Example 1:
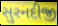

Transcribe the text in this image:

સુરનદીજી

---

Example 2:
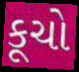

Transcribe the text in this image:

કૂચો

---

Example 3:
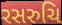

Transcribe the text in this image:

રસરુચિ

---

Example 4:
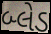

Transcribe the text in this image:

બ્લેડ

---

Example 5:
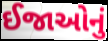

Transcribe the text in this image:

ઈજાઓનું